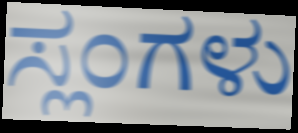
ಸ್ಲಂಗಳು